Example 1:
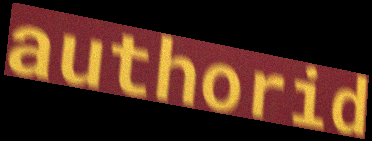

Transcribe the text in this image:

authorid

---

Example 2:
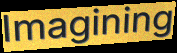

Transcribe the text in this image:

Imagining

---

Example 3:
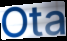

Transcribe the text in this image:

Ota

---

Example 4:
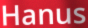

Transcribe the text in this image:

Hanus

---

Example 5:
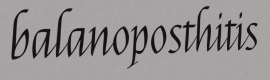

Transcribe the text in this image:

balanoposthitis